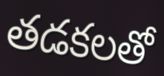
తడకలతో